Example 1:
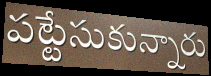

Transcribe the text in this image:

పట్టేసుకున్నారు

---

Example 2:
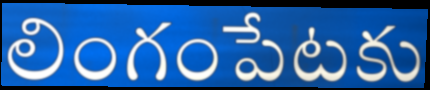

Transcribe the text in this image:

లింగంపేటకు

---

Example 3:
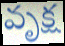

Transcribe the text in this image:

వృక్ష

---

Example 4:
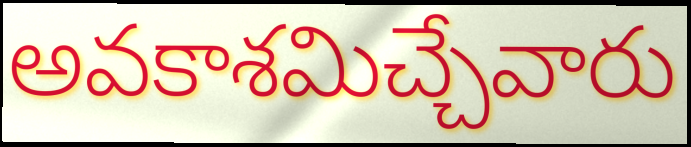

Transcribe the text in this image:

అవకాశమిచ్చేవారు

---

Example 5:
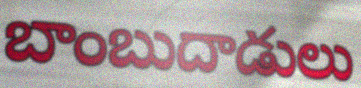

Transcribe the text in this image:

బాంబుదాడులు